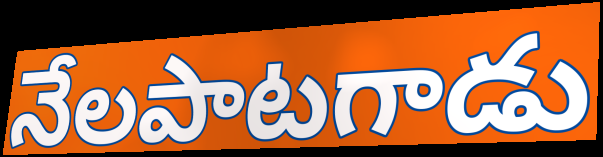
నేలపాటగాడు